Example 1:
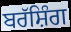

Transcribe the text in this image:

ਬਰੱਸ਼ਿੰਗ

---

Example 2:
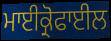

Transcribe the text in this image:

ਮਾਈਕ੍ਰੋਫਾਈਲ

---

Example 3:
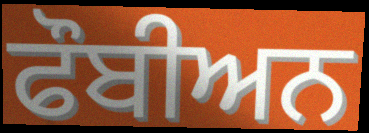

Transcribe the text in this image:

ਫੌਬੀਅਨ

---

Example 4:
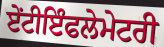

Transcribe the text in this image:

ਏੰਟੀਇੰਫਲੇਮੇਟਰੀ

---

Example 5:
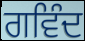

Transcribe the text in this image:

ਗਵਿੰਦ